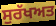
ਸੁਰੱਖਅਤ